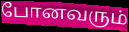
போனவரும்